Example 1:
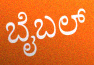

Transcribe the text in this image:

ಬೈಬಲ್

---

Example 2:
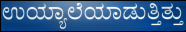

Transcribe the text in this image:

ಉಯ್ಯಾಲೆಯಾಡುತ್ತಿತ್ತು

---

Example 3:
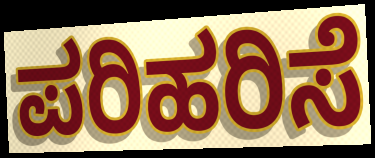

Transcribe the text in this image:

ಪರಿಹರಿಸೆ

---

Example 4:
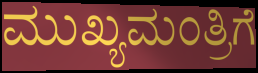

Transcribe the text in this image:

ಮುಖ್ಯಮಂತ್ರಿಗೆ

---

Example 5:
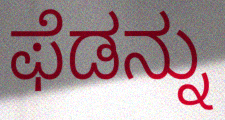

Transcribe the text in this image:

ಫೆಡನ್ನು